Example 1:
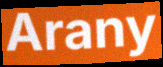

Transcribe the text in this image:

Arany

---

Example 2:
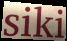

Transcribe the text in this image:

siki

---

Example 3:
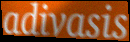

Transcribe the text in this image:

adivasis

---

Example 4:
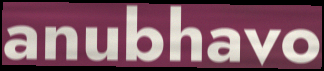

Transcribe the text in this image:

anubhavo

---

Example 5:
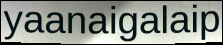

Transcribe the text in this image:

yaanaigalaip